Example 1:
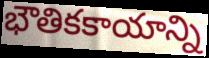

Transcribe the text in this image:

భౌతికకాయాన్ని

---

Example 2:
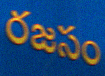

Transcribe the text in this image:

రజసం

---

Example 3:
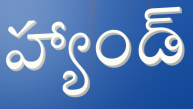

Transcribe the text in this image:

హ్యాండ్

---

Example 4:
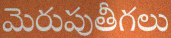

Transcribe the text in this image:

మెరుపుతీగలు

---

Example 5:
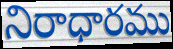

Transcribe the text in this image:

నిరాధారము